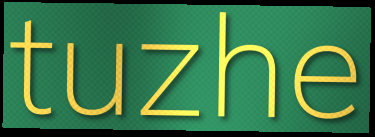
tuzhe